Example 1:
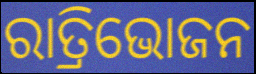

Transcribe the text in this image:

ରାତ୍ରିଭୋଜନ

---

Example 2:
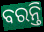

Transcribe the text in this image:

ବରନ୍ତି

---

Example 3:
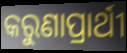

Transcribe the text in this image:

କରୁଣାପ୍ରାର୍ଥୀ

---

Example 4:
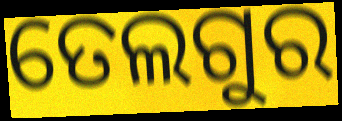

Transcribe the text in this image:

ତେଲଗୁର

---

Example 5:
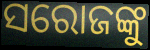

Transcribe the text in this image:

ସରୋଜଙ୍କୁ